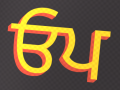
ਓਪ